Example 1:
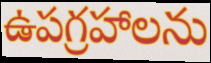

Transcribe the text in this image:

ఉపగ్రహాలను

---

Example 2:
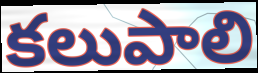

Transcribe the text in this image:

కలుపాలి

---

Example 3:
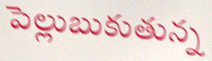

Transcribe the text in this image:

పెల్లుబుకుతున్న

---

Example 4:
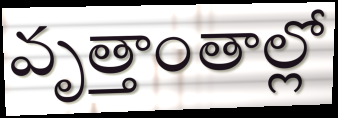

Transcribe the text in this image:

వృత్తాంతాల్లో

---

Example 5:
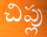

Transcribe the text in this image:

చిప్లు